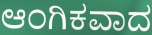
ಆಂಗಿಕವಾದ